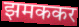
झमककर